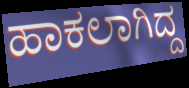
ಹಾಕಲಾಗಿದ್ದ